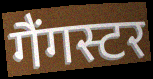
गैंगस्‍टर